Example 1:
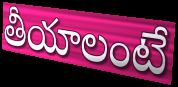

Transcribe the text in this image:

తీయాలంటే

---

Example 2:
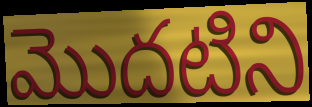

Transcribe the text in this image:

మొదటిని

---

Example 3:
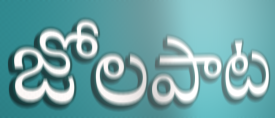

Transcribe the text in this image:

జోలపాట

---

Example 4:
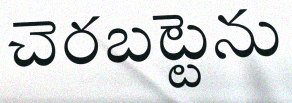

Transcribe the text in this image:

చెరబట్టెను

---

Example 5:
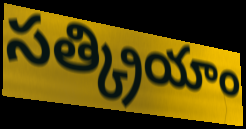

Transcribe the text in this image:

సత్క్రియాం